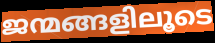
ജന്മങ്ങളിലൂടെ